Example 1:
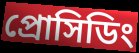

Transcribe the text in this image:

প্রোসিডিং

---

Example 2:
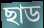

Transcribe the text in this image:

ছাড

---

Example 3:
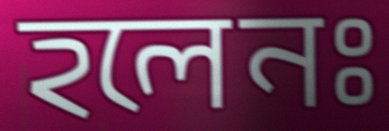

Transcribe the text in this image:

হলেনঃ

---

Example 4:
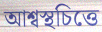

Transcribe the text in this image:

আশ্বস্থচিত্তে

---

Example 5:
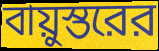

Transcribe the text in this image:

বায়ুস্তরের